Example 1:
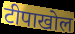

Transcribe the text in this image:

टीपाखोल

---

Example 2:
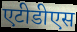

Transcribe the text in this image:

एटीडीएस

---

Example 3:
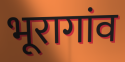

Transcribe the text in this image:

भूरागांव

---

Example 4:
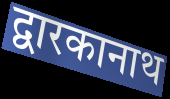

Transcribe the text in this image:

द्वारकानाथ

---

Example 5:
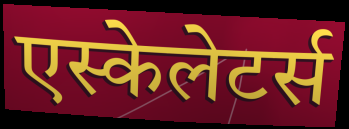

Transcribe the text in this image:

एस्केलेटर्स